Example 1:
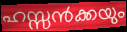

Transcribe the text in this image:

ഹസ്സൻക്കയും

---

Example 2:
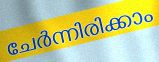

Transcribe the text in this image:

ചേർന്നിരിക്കാം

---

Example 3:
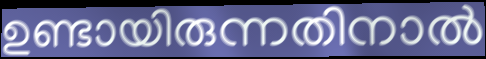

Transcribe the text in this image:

ഉണ്ടായിരുന്നതിനാൽ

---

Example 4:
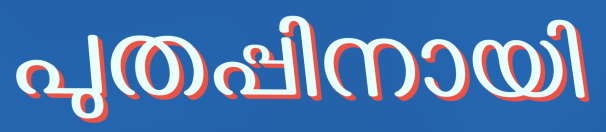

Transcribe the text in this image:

പുതപ്പിനായി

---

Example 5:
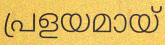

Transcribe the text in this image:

പ്രളയമായ്